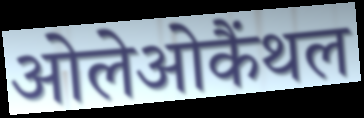
ओलेओकैंथल